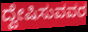
ದ್ವೇಷಿಸುವವರ